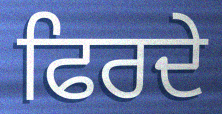
ਫਿਰਦੇ